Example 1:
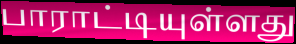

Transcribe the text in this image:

பாராட்டியுள்ளது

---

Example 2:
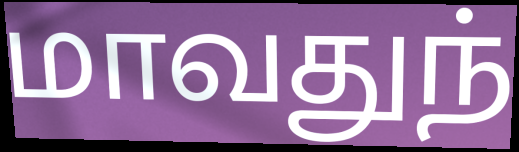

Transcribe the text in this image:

மாவதுந்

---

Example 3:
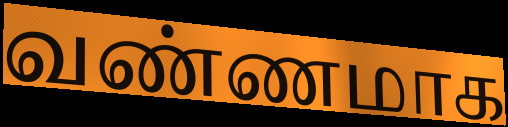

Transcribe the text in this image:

வண்ணமாக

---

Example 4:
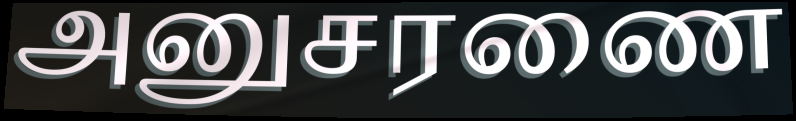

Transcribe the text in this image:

அனுசரணை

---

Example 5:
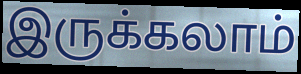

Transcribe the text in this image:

இருக்கலாம்